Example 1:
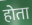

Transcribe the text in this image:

होता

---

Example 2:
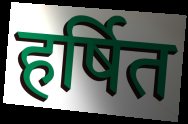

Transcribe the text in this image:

हर्षित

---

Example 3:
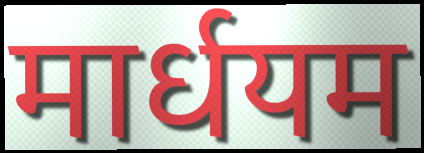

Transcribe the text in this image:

मार्धयम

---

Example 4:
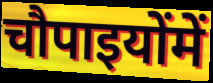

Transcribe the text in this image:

चौपाइयोंमें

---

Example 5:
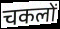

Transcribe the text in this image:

चकलों